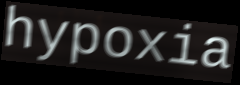
hypoxia